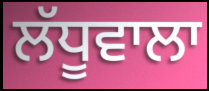
ਲੱਧੂਵਾਲਾ